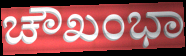
ಚೌಖಂಭಾ